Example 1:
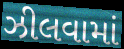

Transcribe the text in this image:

ઝીલવામાં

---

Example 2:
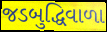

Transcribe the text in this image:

જડબુદ્ધિવાળા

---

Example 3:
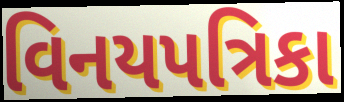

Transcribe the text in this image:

વિનયપત્રિકા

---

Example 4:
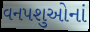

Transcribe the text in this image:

વનપશુઓનાં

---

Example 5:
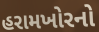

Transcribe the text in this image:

હરામખોરનો